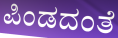
ಪಿಂಡದಂತೆ